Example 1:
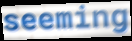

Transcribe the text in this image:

seeming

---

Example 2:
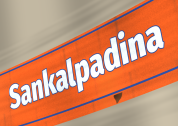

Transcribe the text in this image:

Sankalpadina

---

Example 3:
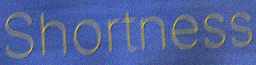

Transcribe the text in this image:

Shortness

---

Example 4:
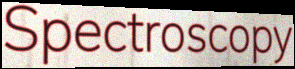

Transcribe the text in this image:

Spectroscopy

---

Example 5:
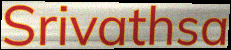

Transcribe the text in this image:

Srivathsa